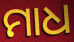
ମାଧ